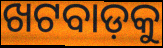
ଖଟବାଡ଼କୁ